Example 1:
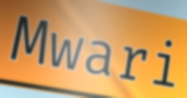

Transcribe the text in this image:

Mwari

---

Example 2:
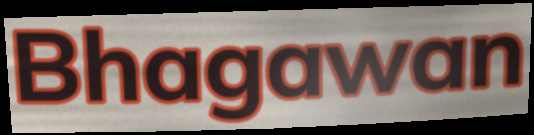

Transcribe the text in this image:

Bhagawan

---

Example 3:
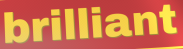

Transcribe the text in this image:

brilliant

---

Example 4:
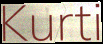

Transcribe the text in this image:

Kurti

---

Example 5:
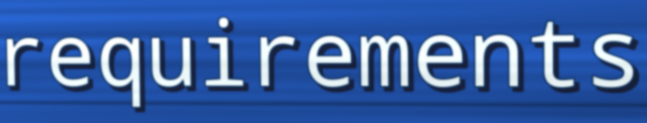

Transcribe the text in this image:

requirements